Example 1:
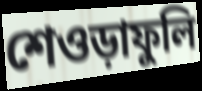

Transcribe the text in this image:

শেওড়াফুলি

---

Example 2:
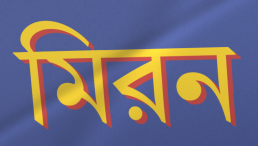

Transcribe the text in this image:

মিরন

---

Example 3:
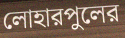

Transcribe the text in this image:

লোহারপুলের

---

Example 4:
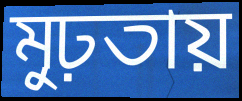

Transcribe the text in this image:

মুঢ়তায়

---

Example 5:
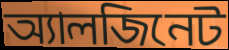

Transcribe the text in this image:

অ্যালজিনেট